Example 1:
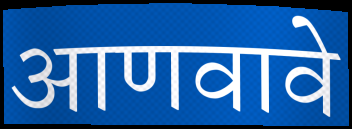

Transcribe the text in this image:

आणवावे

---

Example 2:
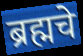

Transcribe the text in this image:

ब्रह्मचे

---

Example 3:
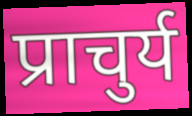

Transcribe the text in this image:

प्राचुर्य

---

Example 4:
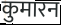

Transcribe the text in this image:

कुमारन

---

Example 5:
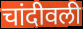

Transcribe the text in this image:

चांदीवली